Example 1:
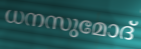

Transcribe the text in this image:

ധനസുമോദ്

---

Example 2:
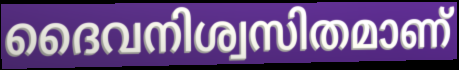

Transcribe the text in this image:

ദൈവനിശ്വസിതമാണ്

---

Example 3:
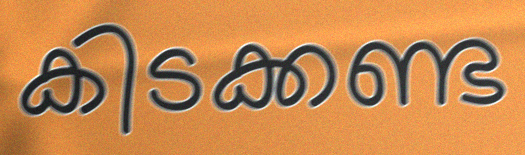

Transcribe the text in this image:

കിടക്കണ്ട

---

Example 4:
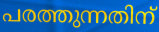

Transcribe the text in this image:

പരത്തുന്നതിന്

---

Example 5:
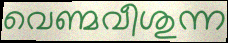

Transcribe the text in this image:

വെണ്മവീശുന്ന